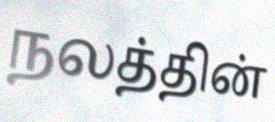
நலத்தின்